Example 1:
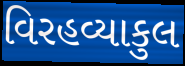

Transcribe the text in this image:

વિરહવ્યાકુલ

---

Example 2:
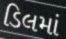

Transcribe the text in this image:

ડિલમાં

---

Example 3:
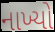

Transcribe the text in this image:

નાખ્યો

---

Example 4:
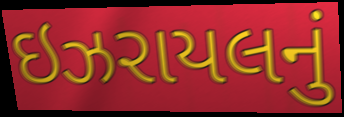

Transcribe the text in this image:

ઇઝરાયલનું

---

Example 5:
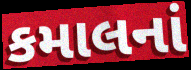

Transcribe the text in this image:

કમાલનાં